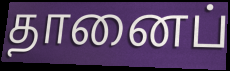
தானைப்